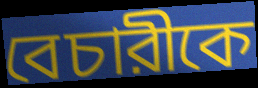
বেচারীকে